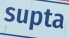
supta